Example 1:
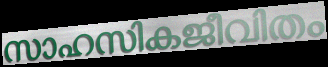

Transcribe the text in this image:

സാഹസികജീവിതം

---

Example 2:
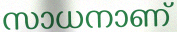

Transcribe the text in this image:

സാധനാണ്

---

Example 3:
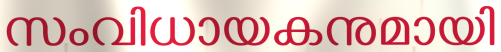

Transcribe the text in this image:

സംവിധായകനുമായി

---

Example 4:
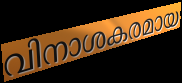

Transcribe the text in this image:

വിനാശകരമായ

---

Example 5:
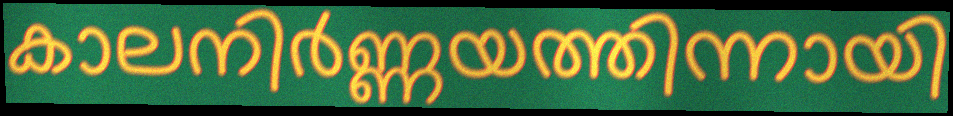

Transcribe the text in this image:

കാലനിർണ്ണയത്തിന്നായി